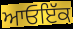
ਆਓਇੱਕ